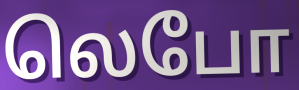
லெபோ